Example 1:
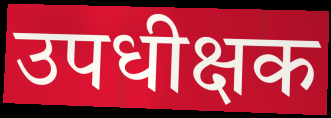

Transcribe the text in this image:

उपधीक्षक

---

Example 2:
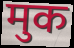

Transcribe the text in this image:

मुक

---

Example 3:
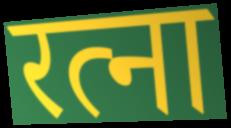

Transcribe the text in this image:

रत्ना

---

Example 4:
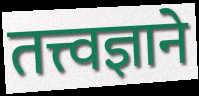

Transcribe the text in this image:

तत्त्वज्ञाने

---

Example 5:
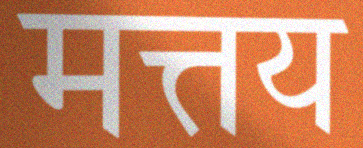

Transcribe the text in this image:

मत्तय